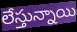
లేస్తున్నాయి